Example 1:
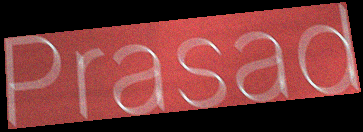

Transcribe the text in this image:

Prasad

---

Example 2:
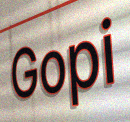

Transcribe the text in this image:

Gopi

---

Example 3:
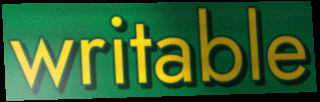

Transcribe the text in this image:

writable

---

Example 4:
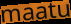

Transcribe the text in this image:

maatu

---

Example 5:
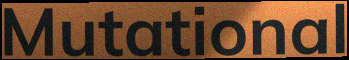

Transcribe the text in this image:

Mutational